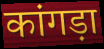
कांगड़ा